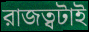
রাজত্বটাই